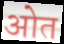
ओत